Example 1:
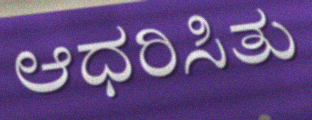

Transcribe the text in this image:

ಆಧರಿಸಿತು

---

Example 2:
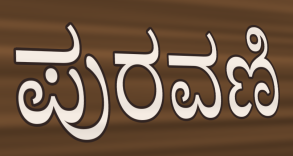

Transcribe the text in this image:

ಪುರವಣಿ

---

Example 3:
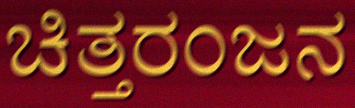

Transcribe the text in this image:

ಚಿತ್ತರಂಜನ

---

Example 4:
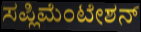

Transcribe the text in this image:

ಸಪ್ಲಿಮೆಂಟೇಶನ್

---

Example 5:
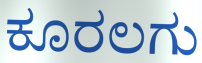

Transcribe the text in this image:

ಕೂರಲಗು